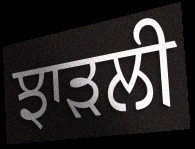
ਝਾੜਲੀ